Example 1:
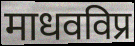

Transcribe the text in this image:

माधवविप्र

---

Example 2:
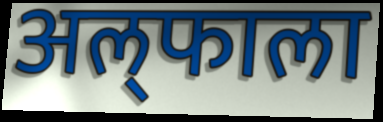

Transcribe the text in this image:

अल्फाला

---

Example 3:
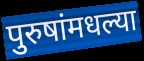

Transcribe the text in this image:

पुरुषांमधल्या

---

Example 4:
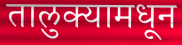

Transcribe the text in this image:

तालुक्यामधून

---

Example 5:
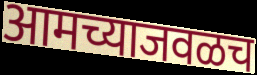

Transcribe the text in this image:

आमच्याजवळच